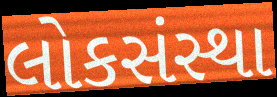
લોકસંસ્થા